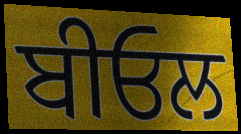
ਬੀਓਲ